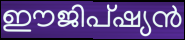
ഈജിപ്ഷ്യൻ